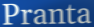
Pranta